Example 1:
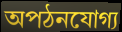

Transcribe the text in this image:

অপঠনযোগ্য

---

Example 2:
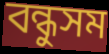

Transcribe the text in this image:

বন্ধুসম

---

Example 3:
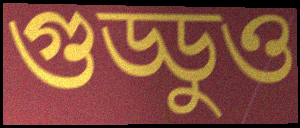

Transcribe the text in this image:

গুড্ডুও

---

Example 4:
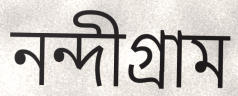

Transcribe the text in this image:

নন্দীগ্রাম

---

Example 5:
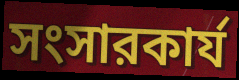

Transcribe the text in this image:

সংসারকার্য